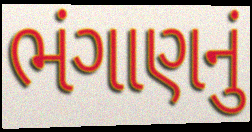
ભંગાણનું